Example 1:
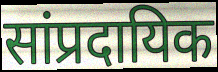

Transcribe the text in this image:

सांप्रदायिक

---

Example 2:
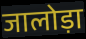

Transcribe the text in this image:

जालोड़ा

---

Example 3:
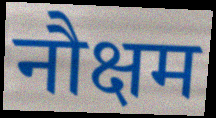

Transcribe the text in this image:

नौक्षम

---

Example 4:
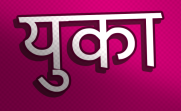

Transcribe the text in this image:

युका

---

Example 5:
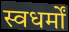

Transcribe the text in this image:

स्वधर्मों